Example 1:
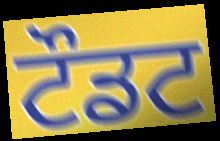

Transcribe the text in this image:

ਟੌਡਟ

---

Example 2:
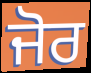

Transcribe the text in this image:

ਜੋਰ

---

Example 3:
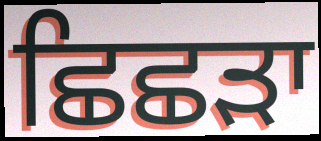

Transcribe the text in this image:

ਛਿਛੜਾ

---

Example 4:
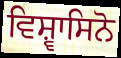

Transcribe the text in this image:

ਵਿਸ਼੍ਵਾਸਿਨੋ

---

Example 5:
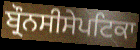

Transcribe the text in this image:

ਬ੍ਰੌਨਸੀਸੇਪਟਿਕਾ